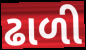
ઢાળી